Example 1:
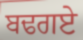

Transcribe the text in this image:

ਬਢਗਏ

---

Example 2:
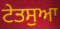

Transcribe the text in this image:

ਟੇਤਸੁਆ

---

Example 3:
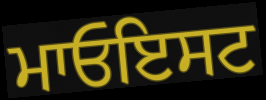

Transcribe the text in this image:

ਮਾਓਇਸਟ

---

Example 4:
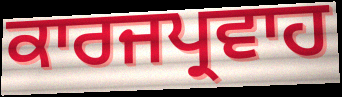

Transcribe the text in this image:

ਕਾਰਜਪ੍ਰਵਾਹ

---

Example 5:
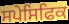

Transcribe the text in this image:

ਸਪੇਸਿਫਿਕ